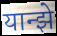
यान्झे